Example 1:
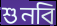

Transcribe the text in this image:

শুনবি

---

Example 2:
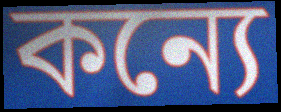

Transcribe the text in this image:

কন্যে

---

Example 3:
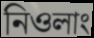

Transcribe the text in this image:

নিওলাং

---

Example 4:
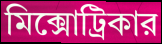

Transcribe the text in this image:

মিক্সোট্রিকার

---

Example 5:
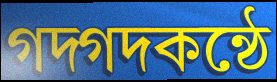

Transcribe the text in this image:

গদ্গদকন্ঠে